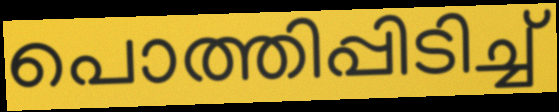
പൊത്തിപ്പിടിച്ച്